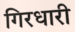
गिरधारी